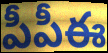
పీపీఈ